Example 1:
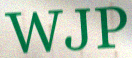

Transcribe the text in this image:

WJP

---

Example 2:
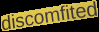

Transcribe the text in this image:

discomfited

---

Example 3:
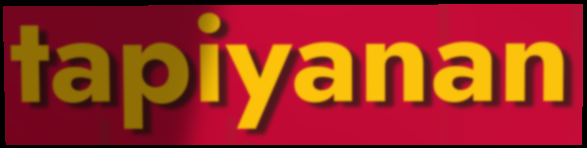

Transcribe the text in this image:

tapiyanan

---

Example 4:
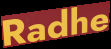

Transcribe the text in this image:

Radhe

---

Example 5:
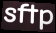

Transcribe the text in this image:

sftp